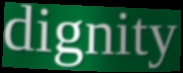
dignity